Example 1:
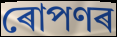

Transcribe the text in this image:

ৰোপণৰ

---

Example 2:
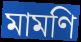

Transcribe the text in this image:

মামণি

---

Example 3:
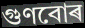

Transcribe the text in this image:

গুণবোৰ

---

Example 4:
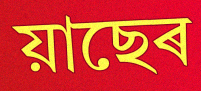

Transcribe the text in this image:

য়াছেৰ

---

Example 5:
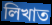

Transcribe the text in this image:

লিখাত